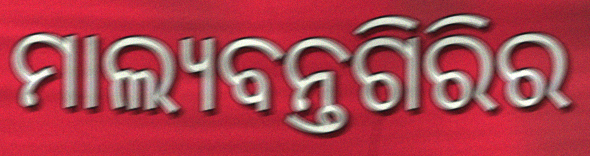
ମାଲ୍ୟବନ୍ତଗିରିର